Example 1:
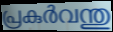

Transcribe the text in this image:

പ്രകുർവന്തു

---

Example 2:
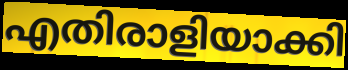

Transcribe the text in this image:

എതിരാളിയാക്കി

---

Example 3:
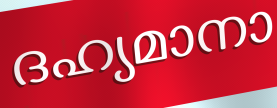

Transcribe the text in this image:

ദഹ്യമാനാ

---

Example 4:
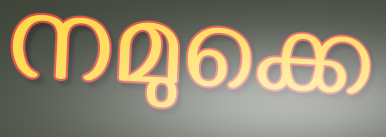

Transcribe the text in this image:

നമുക്കെ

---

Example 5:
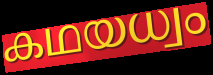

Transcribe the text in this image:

കഥയധ്വം